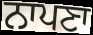
ਨਾਪਣਾ